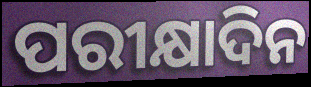
ପରୀକ୍ଷାଦିନ